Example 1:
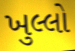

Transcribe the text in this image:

ખુલ્લો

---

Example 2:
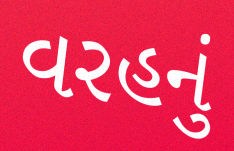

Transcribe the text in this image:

વરહનું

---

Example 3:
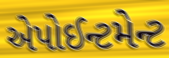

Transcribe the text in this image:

એપોઈન્ટમેન્ટ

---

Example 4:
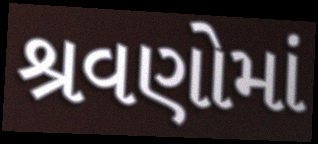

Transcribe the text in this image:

શ્રવણોમાં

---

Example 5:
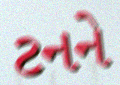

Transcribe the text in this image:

ટનને